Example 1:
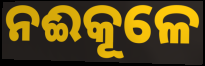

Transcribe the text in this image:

ନଈକୂଳେ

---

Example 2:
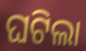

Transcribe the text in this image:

ଘଟିଲା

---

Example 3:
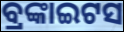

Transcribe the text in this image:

ବ୍ରଙ୍କାଇଟସ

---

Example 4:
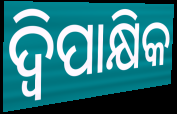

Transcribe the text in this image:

ଦ୍ୱିପାକ୍ଷିକ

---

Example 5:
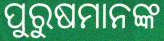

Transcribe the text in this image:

ପୁରୁଷମାନଙ୍କ